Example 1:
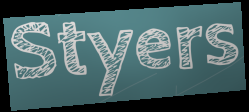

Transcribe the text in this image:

Styers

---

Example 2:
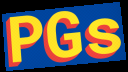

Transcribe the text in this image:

PGs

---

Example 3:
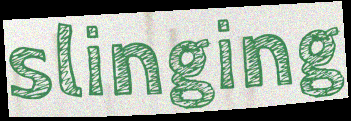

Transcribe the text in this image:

slinging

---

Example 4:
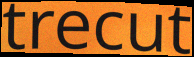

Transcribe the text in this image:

trecut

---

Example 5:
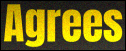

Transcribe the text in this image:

Agrees